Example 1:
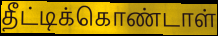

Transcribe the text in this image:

தீட்டிக்கொண்டாள்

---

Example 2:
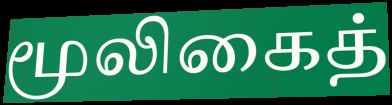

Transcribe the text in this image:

மூலிகைத்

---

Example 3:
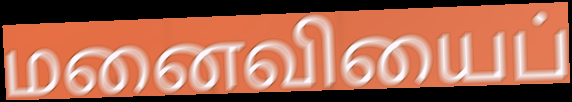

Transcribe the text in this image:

மனைவியைப்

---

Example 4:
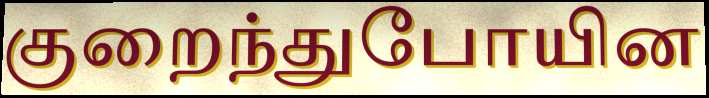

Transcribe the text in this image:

குறைந்துபோயின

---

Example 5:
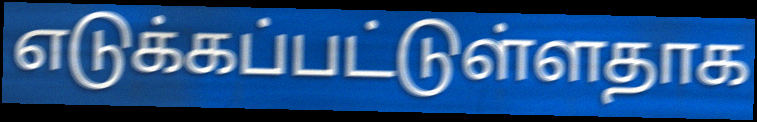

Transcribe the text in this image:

எடுக்கப்பட்டுள்ளதாக